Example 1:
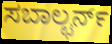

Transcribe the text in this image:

ಸಬಾಲ್ಟರ್ನ್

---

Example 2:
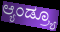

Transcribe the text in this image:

ಆ್ಯಂಡ್ರ್ಯೂ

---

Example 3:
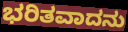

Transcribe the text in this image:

ಭರಿತವಾದನು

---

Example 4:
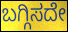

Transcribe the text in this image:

ಬಗ್ಗಿಸದೇ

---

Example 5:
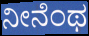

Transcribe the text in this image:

ನೀನೆಂಥ